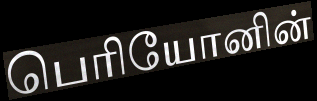
பெரியோனின்